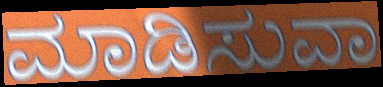
ಮಾಡಿಸುವಾ